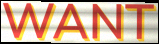
WANT